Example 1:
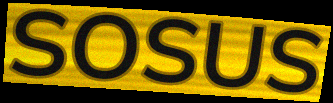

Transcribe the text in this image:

SOSUS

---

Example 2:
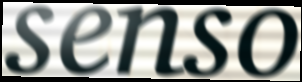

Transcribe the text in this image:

senso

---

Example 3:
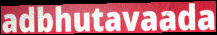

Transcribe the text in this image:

adbhutavaada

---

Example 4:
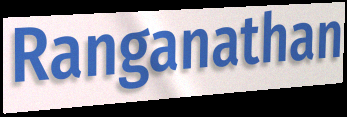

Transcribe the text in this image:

Ranganathan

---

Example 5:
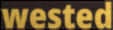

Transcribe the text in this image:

wested